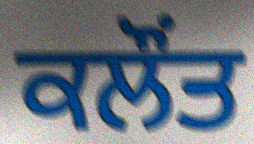
ਕਲੌਂਤ